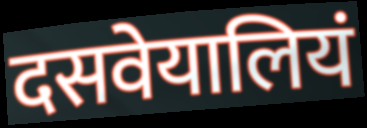
दसवेयालियं